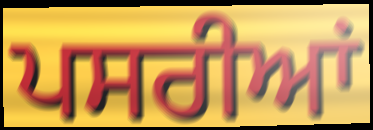
ਪਸਰੀਆਂ